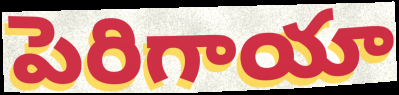
పెరిగాయా